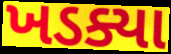
ખડક્યા